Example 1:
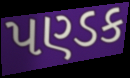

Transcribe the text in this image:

પણ્ડક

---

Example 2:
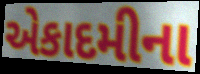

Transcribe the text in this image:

એકાદમીના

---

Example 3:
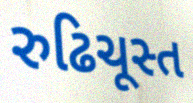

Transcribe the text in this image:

રુઢિચૂસ્ત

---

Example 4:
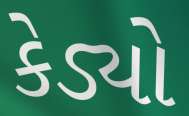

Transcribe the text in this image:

કેડ્યો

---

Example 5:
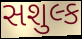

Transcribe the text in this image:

સશુલ્ક